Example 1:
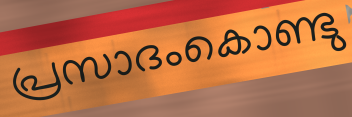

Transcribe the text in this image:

പ്രസാദംകൊണ്ടു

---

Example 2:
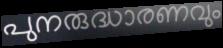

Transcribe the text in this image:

പുനരുദ്ധാരണവും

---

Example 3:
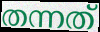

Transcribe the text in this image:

തന്നത്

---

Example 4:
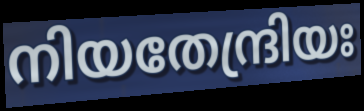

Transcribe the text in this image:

നിയതേന്ദ്രിയഃ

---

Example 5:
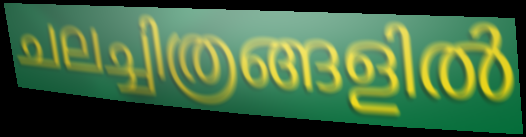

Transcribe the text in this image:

ചലച്ചിത്രങ്ങളിൽ